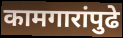
कामगारांपुढे